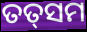
ତତ୍‍ସମ